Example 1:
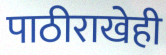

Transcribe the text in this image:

पाठीराखेही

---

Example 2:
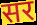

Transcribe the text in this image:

सर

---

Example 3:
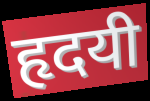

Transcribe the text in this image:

हृदयी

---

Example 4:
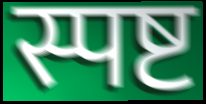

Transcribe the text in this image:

स्पष्ट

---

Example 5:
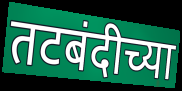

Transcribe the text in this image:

तटबंदीच्या